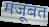
मजूबत